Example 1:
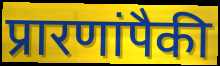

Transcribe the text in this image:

प्रारणांपैकी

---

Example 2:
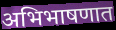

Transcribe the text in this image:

अभिभाषणात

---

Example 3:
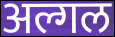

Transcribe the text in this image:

अल्गल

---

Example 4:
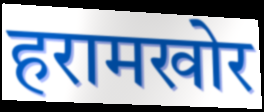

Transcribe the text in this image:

हरामखोर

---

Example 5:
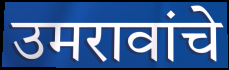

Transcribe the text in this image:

उमरावांचे